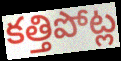
కత్తిపోట్ల